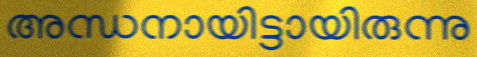
അന്ധനായിട്ടായിരുന്നു